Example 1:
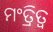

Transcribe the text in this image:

ମଂତ୍ରିତ୍ୱ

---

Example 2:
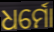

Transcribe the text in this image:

ଧର୍ମୋ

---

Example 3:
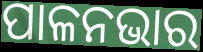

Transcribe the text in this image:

ପାଳନଭାର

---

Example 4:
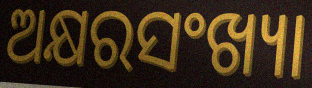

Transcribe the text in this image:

ଅକ୍ଷରସଂଖ୍ୟା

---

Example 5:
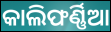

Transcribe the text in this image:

କାଲିଫର୍ଣ୍ଣିଆ